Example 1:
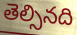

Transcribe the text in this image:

తెల్సినది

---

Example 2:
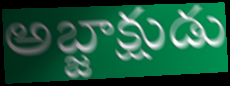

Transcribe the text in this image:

అబ్జాక్షుడు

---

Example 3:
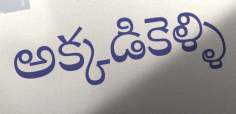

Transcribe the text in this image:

అక్కడికెళ్ళి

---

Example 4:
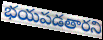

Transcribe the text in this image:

భయపడతారని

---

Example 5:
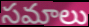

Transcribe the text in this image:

సమాలు